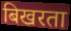
बिखरता